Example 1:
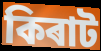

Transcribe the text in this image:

কিৰাট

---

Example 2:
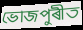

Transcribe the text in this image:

ভোজপুৰীত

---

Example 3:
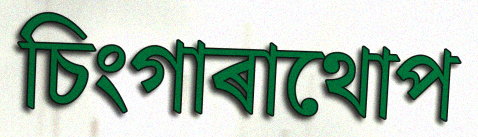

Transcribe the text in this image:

চিংগাৰাথোপ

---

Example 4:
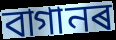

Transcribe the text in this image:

বাগানৰ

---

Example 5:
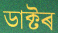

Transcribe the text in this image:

ডাক্টৰ